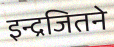
इन्द्रजितने